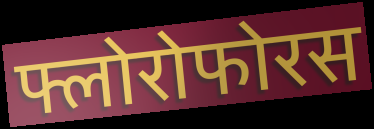
फ्लोरोफोरस